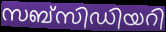
സബ്സിഡിയറി